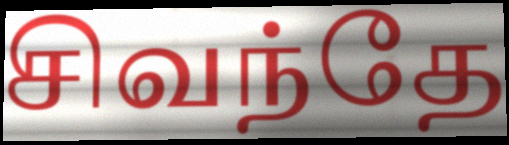
சிவந்தே